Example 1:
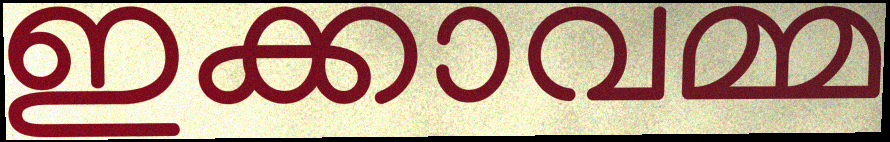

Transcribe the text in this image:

ഇക്കാവമ്മ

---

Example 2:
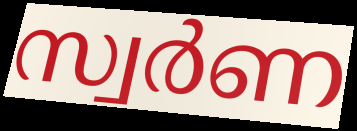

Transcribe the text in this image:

സ്വർണ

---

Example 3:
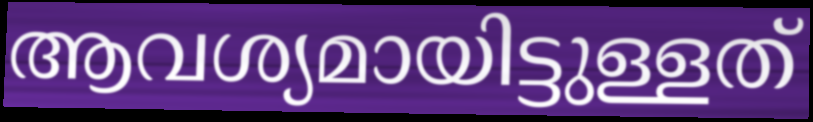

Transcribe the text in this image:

ആവശ്യമായിട്ടുള്ളത്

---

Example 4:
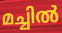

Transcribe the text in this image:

മച്ചിൽ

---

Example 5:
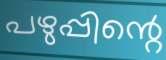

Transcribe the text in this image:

പഴുപ്പിന്റെ